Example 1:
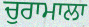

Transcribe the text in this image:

ਚੁਰਾਮਾਲਾ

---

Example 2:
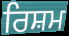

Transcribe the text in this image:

ਰਿਸ਼ਮ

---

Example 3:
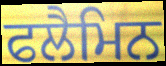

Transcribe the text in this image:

ਫਲੈਮਿਨ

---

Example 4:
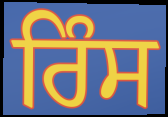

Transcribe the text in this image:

ਰਿੰਸ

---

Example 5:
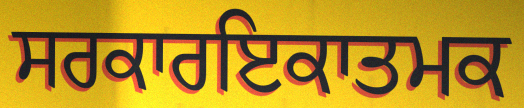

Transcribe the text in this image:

ਸਰਕਾਰਇਕਾਤਮਕ